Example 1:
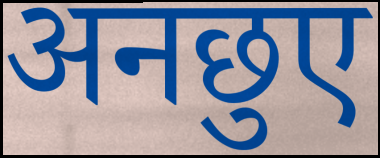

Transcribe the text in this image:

अनछुए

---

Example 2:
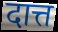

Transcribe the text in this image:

दात्त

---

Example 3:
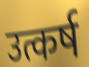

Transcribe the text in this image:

उत्कर्ष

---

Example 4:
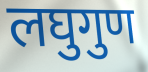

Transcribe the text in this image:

लघुगुण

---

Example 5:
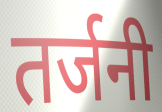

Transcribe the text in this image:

तर्जनी